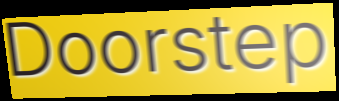
Doorstep